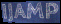
IJAMP